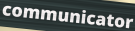
communicator